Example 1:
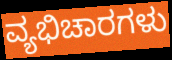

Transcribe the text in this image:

ವ್ಯಭಿಚಾರಗಳು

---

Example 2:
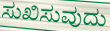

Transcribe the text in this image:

ಸುಖಿಸುವುದು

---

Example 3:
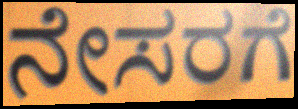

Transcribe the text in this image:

ನೇಸರಗೆ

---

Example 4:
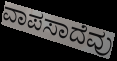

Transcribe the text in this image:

ವಾಪಸಾದೆವು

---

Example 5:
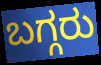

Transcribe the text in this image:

ಬಗ್ಗರು